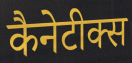
कैनेटीक्स